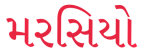
મરસિયો